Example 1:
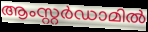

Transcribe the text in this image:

ആംസ്റ്റർഡാമിൽ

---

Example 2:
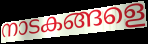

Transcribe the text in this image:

നാടകങ്ങളെ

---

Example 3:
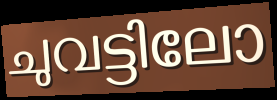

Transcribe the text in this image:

ചുവട്ടിലോ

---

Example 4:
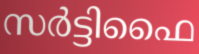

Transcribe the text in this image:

സർട്ടിഫൈ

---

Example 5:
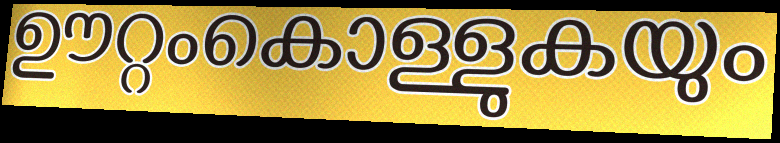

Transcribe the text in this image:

ഊറ്റംകൊള്ളുകയും